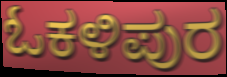
ಓಕಳಿಪುರ